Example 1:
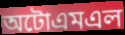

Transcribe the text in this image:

অটোএমএল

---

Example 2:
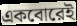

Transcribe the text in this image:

একবোরেই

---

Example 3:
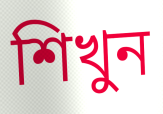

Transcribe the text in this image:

শিখুন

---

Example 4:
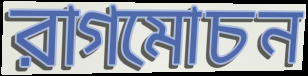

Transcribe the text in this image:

রাগমোচন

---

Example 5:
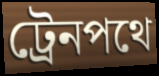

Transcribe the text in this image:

ট্রেনপথে